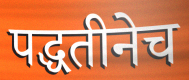
पद्धतीनेच